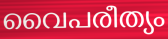
വൈപരീത്യം